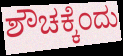
ಶೌಚಕ್ಕೆಂದು